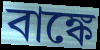
বাঙ্কে